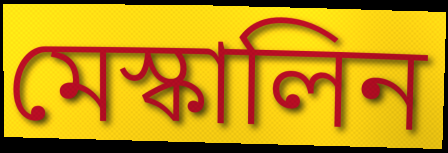
মেস্কালিন